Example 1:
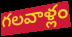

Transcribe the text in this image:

గలవాళ్లం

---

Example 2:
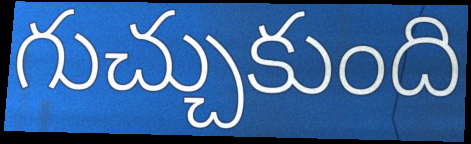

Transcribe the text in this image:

గుచ్చుకుంది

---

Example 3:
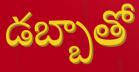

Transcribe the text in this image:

డబ్బాతో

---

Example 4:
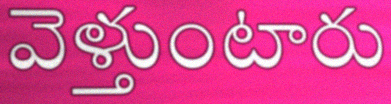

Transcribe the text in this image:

వెళ్తుంటారు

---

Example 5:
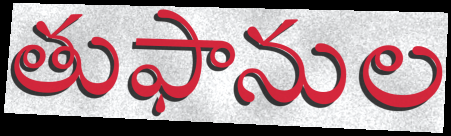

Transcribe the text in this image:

తుఫానుల